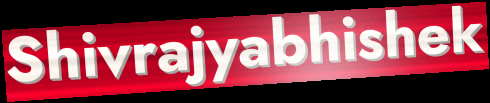
Shivrajyabhishek